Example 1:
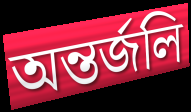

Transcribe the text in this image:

অন্তর্জলি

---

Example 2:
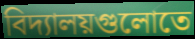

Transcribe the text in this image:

বিদ্যালয়গুলোতে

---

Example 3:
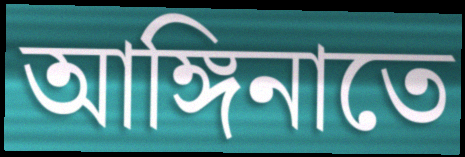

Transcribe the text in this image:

আঙ্গিনাতে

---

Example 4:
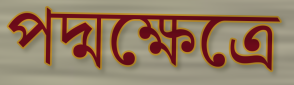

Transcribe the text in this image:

পদ্মক্ষেত্রে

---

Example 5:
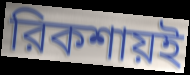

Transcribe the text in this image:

রিকশায়ই